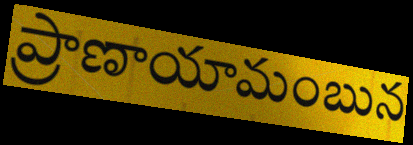
ప్రాణాయామంబున